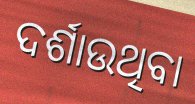
ଦର୍ଶାଉଥିବା